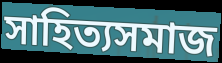
সাহিত্যসমাজ